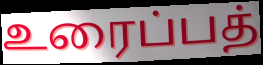
உரைப்பத்